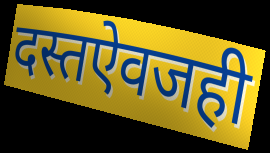
दस्तऐवजही